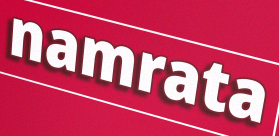
namrata